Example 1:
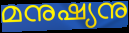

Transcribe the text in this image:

മനുഷ്യനു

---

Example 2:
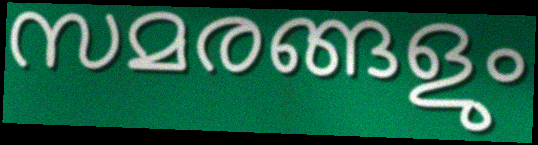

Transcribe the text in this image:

സമരങ്ങളും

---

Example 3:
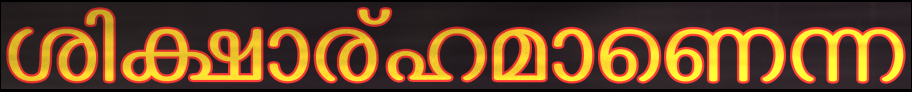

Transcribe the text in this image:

ശിക്ഷാര്ഹമാണെന്ന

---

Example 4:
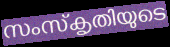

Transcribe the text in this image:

സംസ്‌കൃതിയുടെ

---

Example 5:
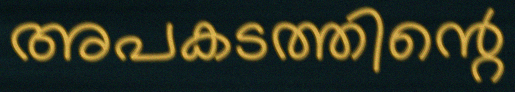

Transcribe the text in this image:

അപകടത്തിന്റെ